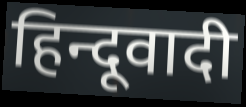
हिन्दूवादी